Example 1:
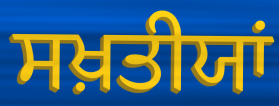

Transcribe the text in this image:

ਸਖ਼ਤੀਯਾਂ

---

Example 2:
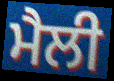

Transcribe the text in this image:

ਮੈਲੀ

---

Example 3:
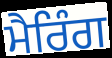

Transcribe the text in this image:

ਮੈਰਿੰਗ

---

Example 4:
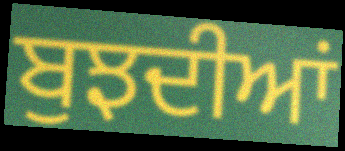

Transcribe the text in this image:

ਬੁਝਦੀਆਂ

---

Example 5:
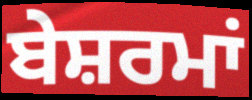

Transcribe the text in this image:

ਬੇਸ਼ਰਮਾਂ